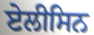
ਏਲੀਸਿਨ